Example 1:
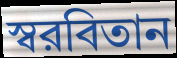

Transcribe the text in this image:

স্বরবিতান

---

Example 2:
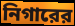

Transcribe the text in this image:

নিগারের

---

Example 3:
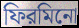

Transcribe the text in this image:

ফিরমিনো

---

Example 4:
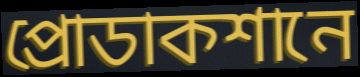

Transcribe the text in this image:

প্রোডাকশানে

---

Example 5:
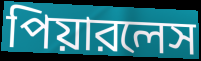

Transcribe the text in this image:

পিয়ারলেস